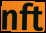
nft